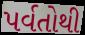
પર્વતોથી